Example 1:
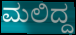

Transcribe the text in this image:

ಮಲಿದ್ದ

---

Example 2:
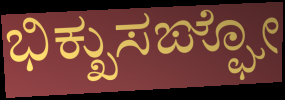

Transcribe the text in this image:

ಭಿಕ್ಖುಸಙ್ಘೋ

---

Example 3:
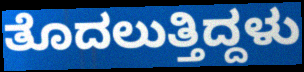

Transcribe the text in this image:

ತೊದಲುತ್ತಿದ್ದಳು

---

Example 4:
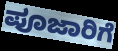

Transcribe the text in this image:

ಪೂಜಾರಿಗೆ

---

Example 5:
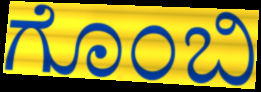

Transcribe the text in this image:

ಗೊಂಬಿ